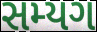
સમ્યગ